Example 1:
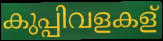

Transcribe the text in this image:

കുപ്പിവളകള്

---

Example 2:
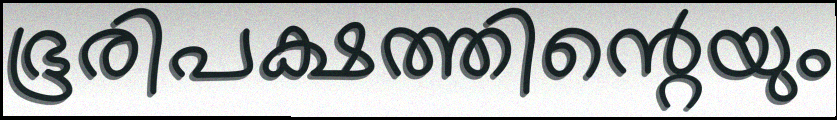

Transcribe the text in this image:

ഭൂരിപക്ഷത്തിന്റെയും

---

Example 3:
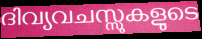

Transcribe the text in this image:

ദിവ്യവചസ്സുകളുടെ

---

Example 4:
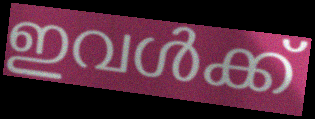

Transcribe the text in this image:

ഇവൾക്ക്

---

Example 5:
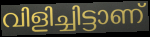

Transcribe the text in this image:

വിളിച്ചിട്ടാണ്